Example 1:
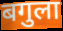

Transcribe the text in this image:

बगुला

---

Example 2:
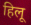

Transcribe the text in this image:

हिलू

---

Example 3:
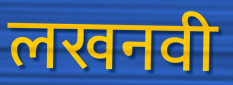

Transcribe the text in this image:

लखनवी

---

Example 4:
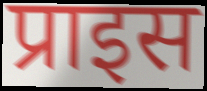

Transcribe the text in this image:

प्राइस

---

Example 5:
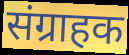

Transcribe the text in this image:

संग्राहक